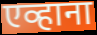
एव्हाना